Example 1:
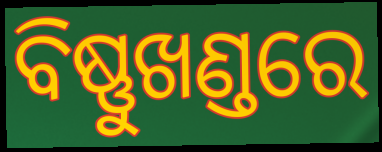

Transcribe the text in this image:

ବିଷ୍ଣୁଖଣ୍ଡରେ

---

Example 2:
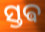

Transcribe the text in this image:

ସ୍ତଵ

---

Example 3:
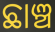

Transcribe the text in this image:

ଛାଞ୍ଚ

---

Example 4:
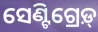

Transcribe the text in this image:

ସେଣ୍ଟିଗ୍ରେଡ଼୍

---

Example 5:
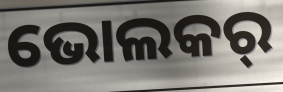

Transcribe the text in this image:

ଭୋଲକର୍